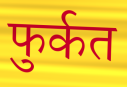
फुर्कत